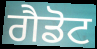
ਗੈਡੋਟ